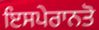
ਇਸਪੇਰਾਨਤੋ